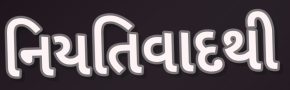
નિયતિવાદથી